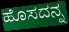
ಹೊಸದನ್ನ